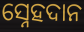
ସ୍ନେହଦାନ